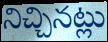
నిచ్చినట్లు